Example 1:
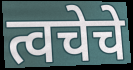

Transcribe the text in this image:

त्वचेचे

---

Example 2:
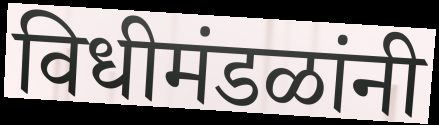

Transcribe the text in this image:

विधीमंडळांनी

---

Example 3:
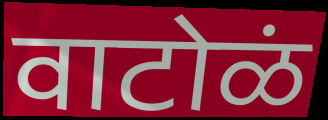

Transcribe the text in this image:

वाटोळं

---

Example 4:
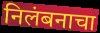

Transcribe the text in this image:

निलंबनाचा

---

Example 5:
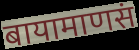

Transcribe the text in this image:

बायामाणसं